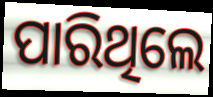
ପାରିଥିଲେ